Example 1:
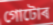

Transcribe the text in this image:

গোটোৰ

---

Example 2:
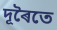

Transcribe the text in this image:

দূৰৈতে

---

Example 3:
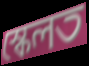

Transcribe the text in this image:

স্কেলত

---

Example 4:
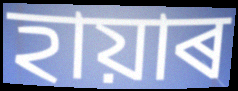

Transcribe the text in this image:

হায়াৰ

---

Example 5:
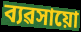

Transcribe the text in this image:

ব্যৱসায়ো